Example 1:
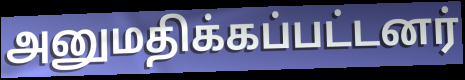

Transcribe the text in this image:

அனுமதிக்கப்பட்டனர்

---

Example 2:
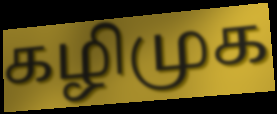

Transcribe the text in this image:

கழிமுக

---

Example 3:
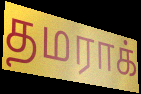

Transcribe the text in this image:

தமராக்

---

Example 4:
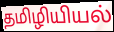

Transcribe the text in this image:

தமிழியியல்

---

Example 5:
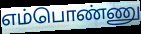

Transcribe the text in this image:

எம்பொண்ணு